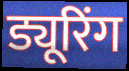
ड्यूरिंग